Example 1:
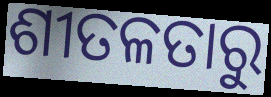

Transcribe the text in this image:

ଶୀତଳତାରୁ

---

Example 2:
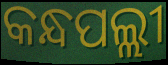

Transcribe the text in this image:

କନ୍ଧପଲ୍ଲୀ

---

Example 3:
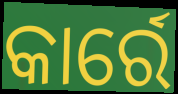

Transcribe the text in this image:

କାର୍ରେ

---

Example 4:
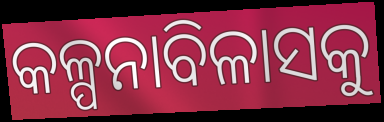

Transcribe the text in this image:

କଳ୍ପନାବିଳାସକୁ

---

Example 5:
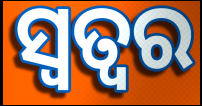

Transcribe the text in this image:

ସ୍ୱତ୍ୱର